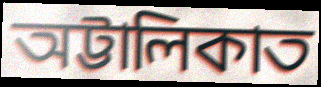
অট্টালিকাত